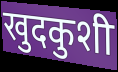
खुदकुशी